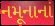
નમૂનાનાં